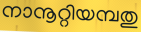
നാനൂറ്റിയമ്പതു